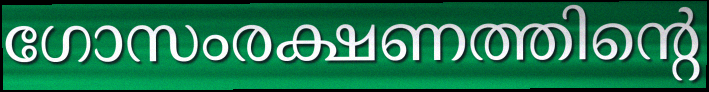
ഗോസംരക്ഷണത്തിന്റെ